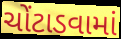
ચોંટાડવામાં